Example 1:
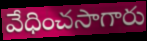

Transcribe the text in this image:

వేధించసాగారు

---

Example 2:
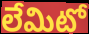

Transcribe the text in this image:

లేమిటో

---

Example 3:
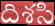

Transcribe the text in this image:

దిశసి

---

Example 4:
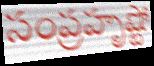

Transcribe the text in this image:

సంప్రహృష్టో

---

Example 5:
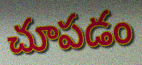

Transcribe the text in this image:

చూపడం